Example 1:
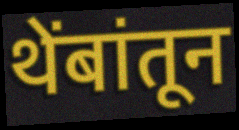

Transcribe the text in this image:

थेंबांतून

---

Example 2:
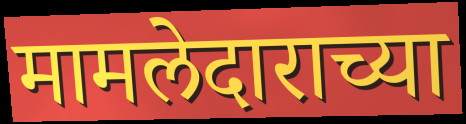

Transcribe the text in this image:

मामलेदाराच्या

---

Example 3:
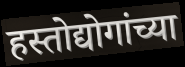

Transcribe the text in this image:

हस्तोद्योगांच्या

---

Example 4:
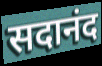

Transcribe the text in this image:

सदानंद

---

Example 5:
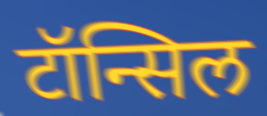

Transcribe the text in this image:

टॉन्सिल